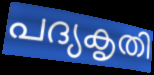
പദ്യകൃതി